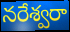
నరేశ్వరా